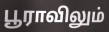
பூராவிலும்